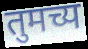
तुमच्य